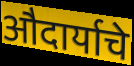
औदार्याचे